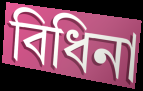
বিধিনা